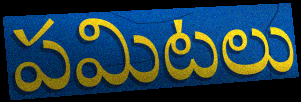
పమిటలు